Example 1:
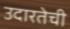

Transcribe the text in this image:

उदारतेची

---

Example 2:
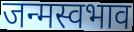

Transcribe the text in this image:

जन्मस्वभाव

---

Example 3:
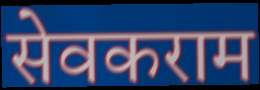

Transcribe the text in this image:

सेवकराम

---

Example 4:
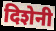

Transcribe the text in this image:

दिशेनी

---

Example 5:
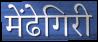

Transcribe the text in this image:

मेंढेगिरी